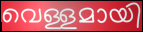
വെള്ളമായി